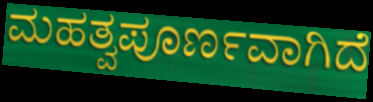
ಮಹತ್ವಪೂರ್ಣವಾಗಿದೆ